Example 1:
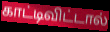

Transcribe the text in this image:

காட்டிவிட்டால்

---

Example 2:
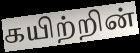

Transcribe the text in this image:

கயிற்றின்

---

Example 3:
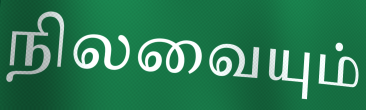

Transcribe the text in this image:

நிலவையும்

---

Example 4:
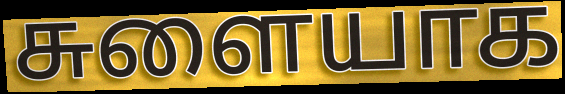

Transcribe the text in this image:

சுளையாக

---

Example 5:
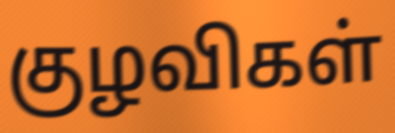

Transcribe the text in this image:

குழவிகள்